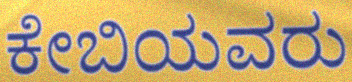
ಕೇಬಿಯವರು